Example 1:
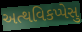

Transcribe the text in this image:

અત્થવિકપ્પેસુ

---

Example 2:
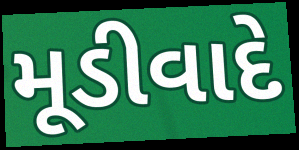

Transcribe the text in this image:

મૂડીવાદે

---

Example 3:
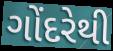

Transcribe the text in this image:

ગોંદરેથી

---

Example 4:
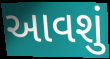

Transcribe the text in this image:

આવશું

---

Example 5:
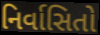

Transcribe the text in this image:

નિર્વાસિતો